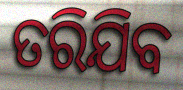
ତରିଯିବ